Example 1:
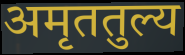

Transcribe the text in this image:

अमृततुल्य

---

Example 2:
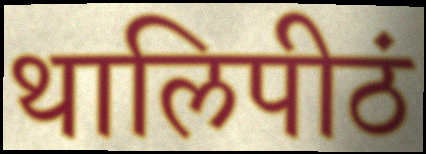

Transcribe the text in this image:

थालिपीठं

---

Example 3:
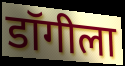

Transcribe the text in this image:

डॉगीला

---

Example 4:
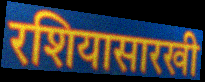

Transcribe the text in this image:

रशियासारखी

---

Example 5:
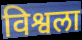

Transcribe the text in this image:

विश्वला